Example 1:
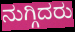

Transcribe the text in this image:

ನುಗ್ಗಿದರು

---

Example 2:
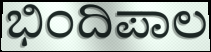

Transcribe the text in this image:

ಭಿಂದಿಪಾಲ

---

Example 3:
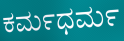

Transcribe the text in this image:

ಕರ್ಮಧರ್ಮ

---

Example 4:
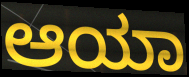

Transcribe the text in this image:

ಆಯಾ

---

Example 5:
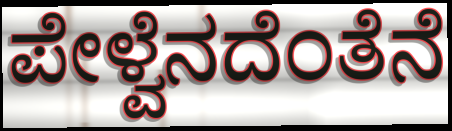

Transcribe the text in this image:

ಪೇಳ್ವೆನದೆಂತೆನೆ